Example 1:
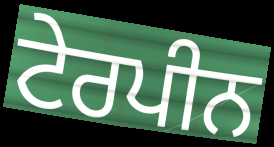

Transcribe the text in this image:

ਟੇਰਪੀਨ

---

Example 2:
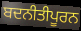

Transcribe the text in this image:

ਬਦਨੀਤੀਪੂਰਨ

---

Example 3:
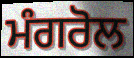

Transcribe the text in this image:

ਮੰਗਰੋਲ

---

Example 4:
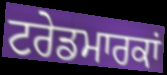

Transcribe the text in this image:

ਟਰੇਡਮਾਰਕਾਂ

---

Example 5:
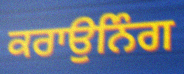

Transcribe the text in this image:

ਕਰਾਉਨਿੰਗ